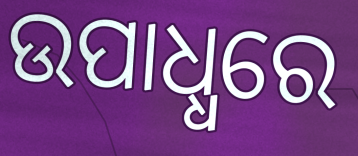
ଉପାଧ୍ଧରେ